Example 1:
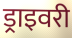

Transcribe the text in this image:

ड्राइवरी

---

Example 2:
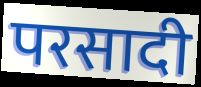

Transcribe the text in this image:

परसादी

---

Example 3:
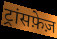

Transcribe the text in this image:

ट्रांसफ़ेज़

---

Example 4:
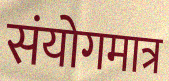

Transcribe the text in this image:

संयोगमात्र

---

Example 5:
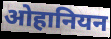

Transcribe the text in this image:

ओहानियन